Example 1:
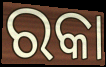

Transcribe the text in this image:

ରକା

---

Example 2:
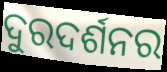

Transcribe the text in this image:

ଦୁରଦର୍ଶନର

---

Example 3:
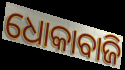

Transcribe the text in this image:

ଧୋକାବାଜି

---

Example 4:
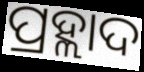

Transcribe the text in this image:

ପ୍ରହ୍ଲାଦ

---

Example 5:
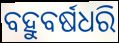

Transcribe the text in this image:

ବହୁବର୍ଷଧରି